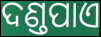
ଦଣ୍ଡପାଏ